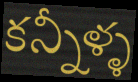
కన్నీళ్ళ